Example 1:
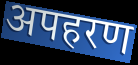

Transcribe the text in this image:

अपहरण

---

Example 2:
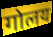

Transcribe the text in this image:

गोलय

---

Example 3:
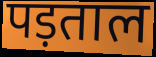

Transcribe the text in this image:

पड़ताल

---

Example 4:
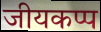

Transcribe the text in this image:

जीयकप्प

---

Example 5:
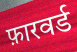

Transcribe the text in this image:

फ़ारवर्ड